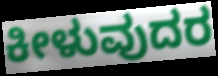
ಕೀಳುವುದರ